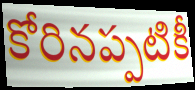
కోరినప్పటికీ